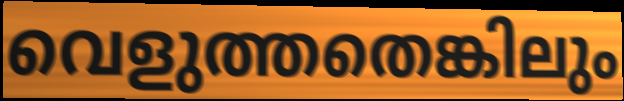
വെളുത്തതെങ്കിലും